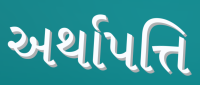
અર્થાપત્તિ